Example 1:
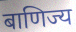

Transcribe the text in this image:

बाणिज्य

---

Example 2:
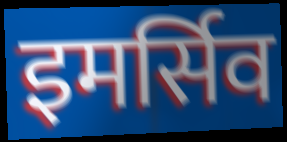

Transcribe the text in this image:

इमर्सिव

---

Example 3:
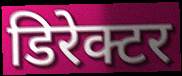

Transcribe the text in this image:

डिरेक्टर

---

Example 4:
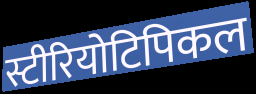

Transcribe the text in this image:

स्टीरियोटिपिकल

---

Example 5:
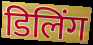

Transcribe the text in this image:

डिलिंग